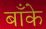
बाँके